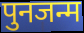
पुनजन्म